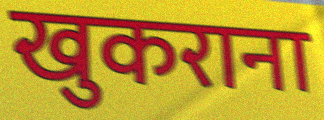
खुकराना